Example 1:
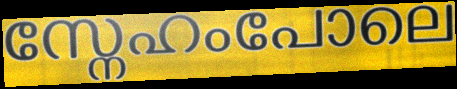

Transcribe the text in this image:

സ്നേഹംപോലെ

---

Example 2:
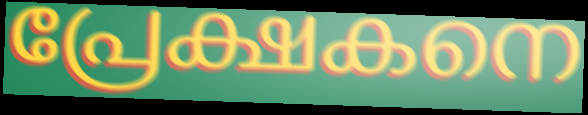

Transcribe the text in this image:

പ്രേക്ഷകനെ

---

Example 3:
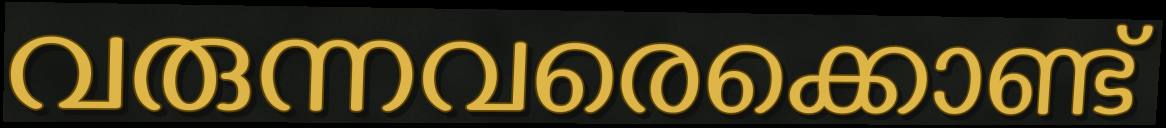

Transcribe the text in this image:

വരുന്നവരെക്കൊണ്ട്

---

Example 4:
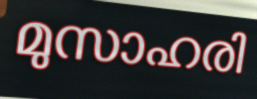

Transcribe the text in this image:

മുസാഹരി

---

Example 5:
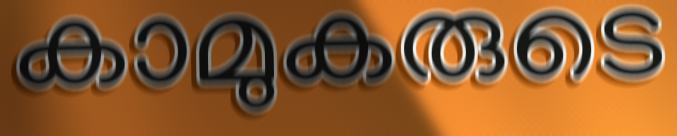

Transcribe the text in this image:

കാമുകരുടെ